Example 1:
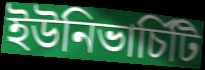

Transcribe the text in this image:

ইউনিভাৰ্চিটি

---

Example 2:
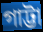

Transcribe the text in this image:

গাট্টা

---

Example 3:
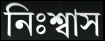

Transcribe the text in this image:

নিঃশ্বাস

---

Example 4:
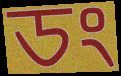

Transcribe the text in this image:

ডং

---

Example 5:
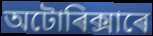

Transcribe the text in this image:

অটোৰিক্সাৰে